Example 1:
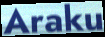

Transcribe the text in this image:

Araku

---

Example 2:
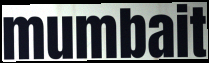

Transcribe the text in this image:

mumbait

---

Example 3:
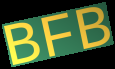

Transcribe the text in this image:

BFB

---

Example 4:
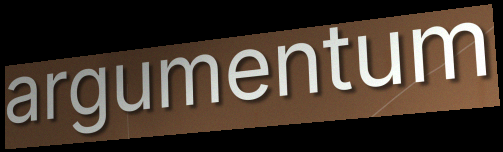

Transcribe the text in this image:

argumentum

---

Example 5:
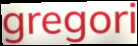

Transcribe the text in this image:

gregori